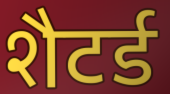
शैटर्ड